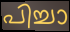
പിച്ചാ